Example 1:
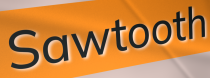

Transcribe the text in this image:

Sawtooth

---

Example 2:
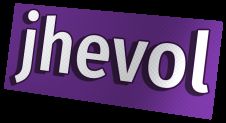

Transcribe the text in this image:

jhevol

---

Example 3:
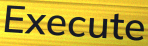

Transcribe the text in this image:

Execute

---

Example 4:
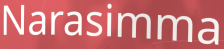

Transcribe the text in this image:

Narasimma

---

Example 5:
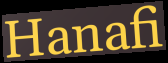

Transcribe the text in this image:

Hanafi